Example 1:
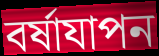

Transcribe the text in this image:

বর্ষাযাপন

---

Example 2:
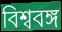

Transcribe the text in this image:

বিশ্ববঙ্গ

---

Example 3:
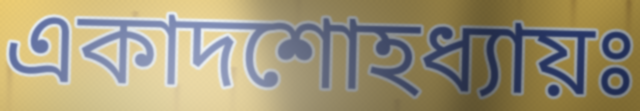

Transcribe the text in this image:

একাদশোহধ্যায়ঃ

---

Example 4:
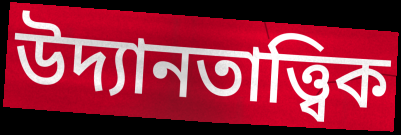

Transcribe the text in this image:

উদ্যানতাত্ত্বিক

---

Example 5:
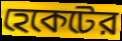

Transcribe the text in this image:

হেকেটের